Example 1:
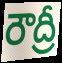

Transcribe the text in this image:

రౌద్రీ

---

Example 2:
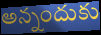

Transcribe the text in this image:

అన్నందుకు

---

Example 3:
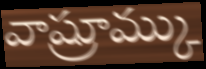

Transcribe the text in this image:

వాష్రూమ్కు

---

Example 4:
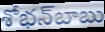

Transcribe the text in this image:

శోభన్‌బాబు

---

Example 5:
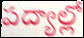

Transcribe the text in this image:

పద్యాల్లో